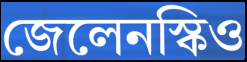
জেলেনস্কিও